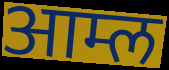
आम्‍ल